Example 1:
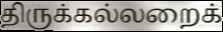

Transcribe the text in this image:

திருக்கல்லறைக்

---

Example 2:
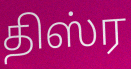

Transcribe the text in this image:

திஸ்ர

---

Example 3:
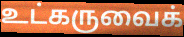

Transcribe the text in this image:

உட்கருவைக்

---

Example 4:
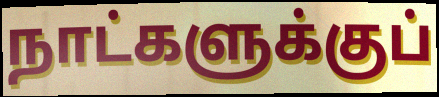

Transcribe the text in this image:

நாட்களுக்குப்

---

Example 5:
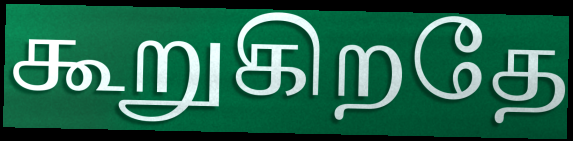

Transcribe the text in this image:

கூறுகிறதே